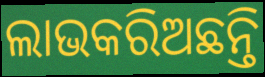
ଲାଭକରିଅଛନ୍ତି